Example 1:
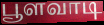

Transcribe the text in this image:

பூளவாடி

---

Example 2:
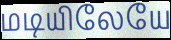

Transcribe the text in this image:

மடியிலேயே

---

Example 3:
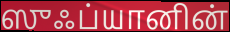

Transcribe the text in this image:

ஸுஃப்யானின்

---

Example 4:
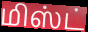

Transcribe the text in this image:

மிஸ்ட்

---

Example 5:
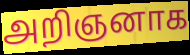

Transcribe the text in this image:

அறிஞனாக